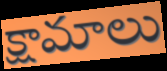
క్షామాలు